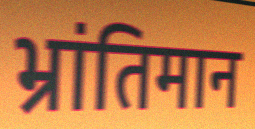
भ्रांतिमान